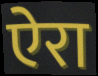
ऐरा